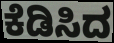
ಕೆಡಿಸಿದ